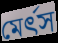
মের্ৎস